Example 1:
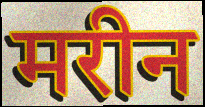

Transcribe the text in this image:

मरीन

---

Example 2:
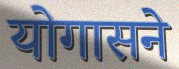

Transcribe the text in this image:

योगासने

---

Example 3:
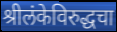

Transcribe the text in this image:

श्रीलंकेविरुद्धचा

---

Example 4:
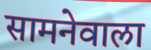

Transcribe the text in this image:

सामनेवाला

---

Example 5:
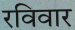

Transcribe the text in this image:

रविवार